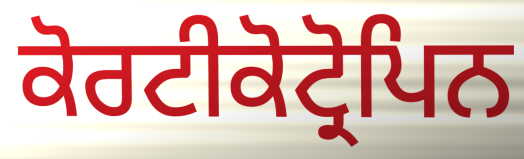
ਕੋਰਟੀਕੋਟ੍ਰੋਪਿਨ